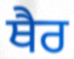
ਥੈਰ